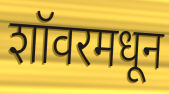
शॉवरमधून